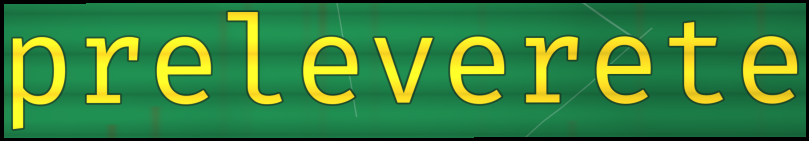
preleverete